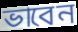
ভাবেন